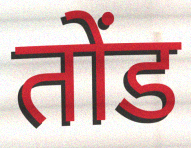
तोंड